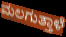
ಮಲಗುತ್ತಾಳೆ